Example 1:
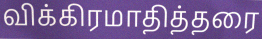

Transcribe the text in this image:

விக்கிரமாதித்தரை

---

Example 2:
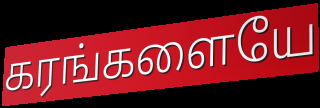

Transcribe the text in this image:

கரங்களையே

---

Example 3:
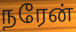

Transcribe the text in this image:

நரேன்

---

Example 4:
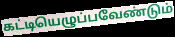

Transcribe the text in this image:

கட்டியெழுப்பவேண்டும்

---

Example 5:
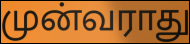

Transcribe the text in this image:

முன்வராது